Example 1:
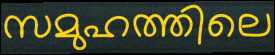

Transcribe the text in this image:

സമുഹത്തിലെ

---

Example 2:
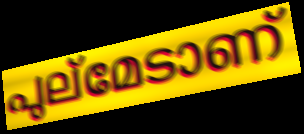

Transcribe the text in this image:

പുല്മേടാണ്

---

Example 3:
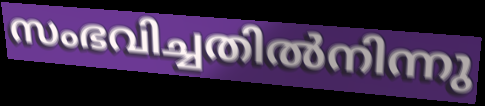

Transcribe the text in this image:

സംഭവിച്ചതിൽനിന്നു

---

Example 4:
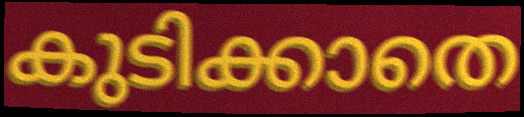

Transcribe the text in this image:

കുടിക്കാതെ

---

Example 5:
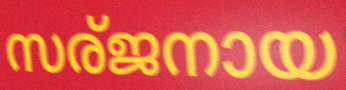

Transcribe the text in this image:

സര്ജനായ